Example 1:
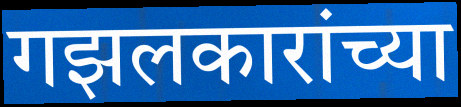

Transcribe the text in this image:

गझलकारांच्या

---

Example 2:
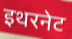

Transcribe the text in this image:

इथरनेट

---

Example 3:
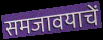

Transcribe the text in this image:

समजावयाचें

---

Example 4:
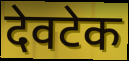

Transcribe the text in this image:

देवटेक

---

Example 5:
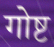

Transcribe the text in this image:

गोष्ट